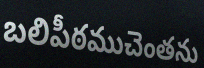
బలిపీఠముచెంతను